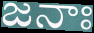
జనాః